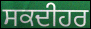
ਸਕਦੀਹਰ